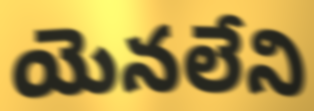
యెనలేని